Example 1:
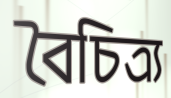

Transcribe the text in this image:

বৈচিত্ৰ্য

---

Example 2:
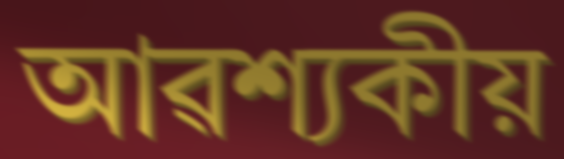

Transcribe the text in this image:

আৱশ্যকীয়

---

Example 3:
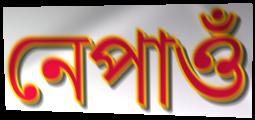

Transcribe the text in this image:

নেপাওঁ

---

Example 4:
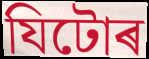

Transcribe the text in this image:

যিটোৰ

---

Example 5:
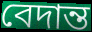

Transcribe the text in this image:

বেদান্ত